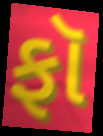
ફૉ